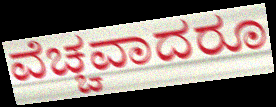
ವೆಚ್ಚವಾದರೂ